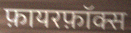
फ़ायरफ़ॉक्स